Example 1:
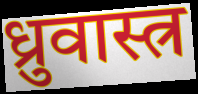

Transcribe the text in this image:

ध्रुवास्त्र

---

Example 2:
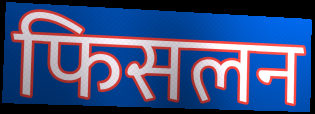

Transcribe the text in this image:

फिसलन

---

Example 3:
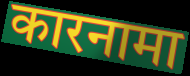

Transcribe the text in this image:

कारनामा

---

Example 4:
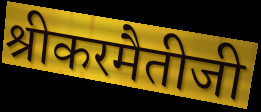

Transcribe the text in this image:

श्रीकरमैतीजी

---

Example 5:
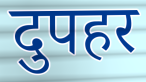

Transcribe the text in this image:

दुपहर